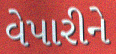
વેપારીને